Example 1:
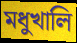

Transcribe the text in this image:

মধুখালি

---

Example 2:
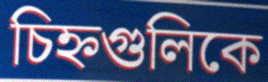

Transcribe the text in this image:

চিহ্নগুলিকে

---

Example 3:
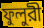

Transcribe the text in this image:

ফুলুরী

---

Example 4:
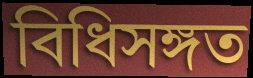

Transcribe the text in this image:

বিধিসঙ্গত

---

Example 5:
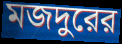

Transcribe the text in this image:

মজদুরের